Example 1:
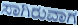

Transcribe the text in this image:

ಸಾಗಿರುವಾಗ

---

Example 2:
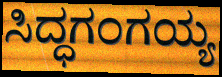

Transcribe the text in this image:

ಸಿದ್ಧಗಂಗಯ್ಯ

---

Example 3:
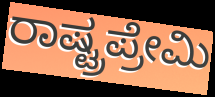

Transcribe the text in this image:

ರಾಷ್ಟ್ರಪ್ರೇಮಿ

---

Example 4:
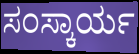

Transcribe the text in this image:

ಸಂಸ್ಕಾರ್ಯ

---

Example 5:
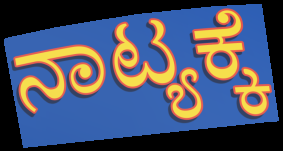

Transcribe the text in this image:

ನಾಟ್ಯಕ್ಕೆ